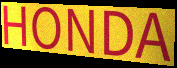
HONDA